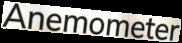
Anemometer